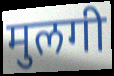
मुलगी